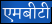
एमबीटी